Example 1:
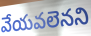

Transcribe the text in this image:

వేయవలెనని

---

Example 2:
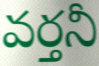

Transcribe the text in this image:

వర్తనీ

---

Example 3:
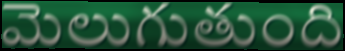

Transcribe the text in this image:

మెలుగుతుంది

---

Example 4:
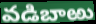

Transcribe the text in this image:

వడిబాఱు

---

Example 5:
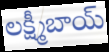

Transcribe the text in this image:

లక్ష్మీబాయ్